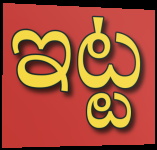
ఇట్ట